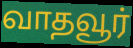
வாதவூர்